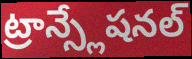
ట్రాన్స్లేషనల్